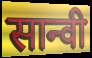
सान्वी